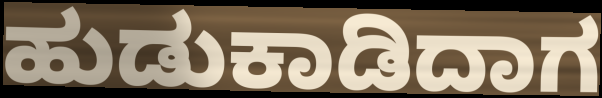
ಹುಡುಕಾಡಿದಾಗ